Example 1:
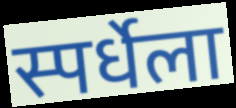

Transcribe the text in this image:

स्पर्धेला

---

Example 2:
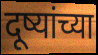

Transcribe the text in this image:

दूष्यांच्या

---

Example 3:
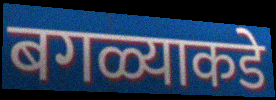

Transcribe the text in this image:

बगळ्याकडे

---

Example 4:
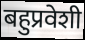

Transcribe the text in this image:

बहुप्रवेशी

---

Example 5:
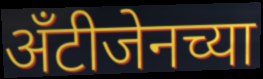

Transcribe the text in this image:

अँटीजेनच्या